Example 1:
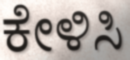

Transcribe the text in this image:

ಕೇಳಿಸಿ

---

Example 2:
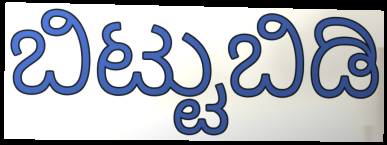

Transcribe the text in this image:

ಬಿಟ್ಟುಬಿಡಿ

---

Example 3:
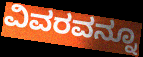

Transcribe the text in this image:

ವಿವರವನ್ನೂ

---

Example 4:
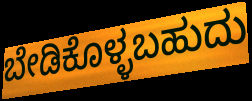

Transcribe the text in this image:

ಬೇಡಿಕೊಳ್ಳಬಹುದು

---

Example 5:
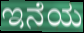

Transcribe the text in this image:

ಇನೆಯ